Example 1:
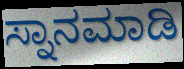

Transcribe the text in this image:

ಸ್ನಾನಮಾಡಿ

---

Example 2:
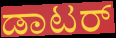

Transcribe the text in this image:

ಡಾಟರ್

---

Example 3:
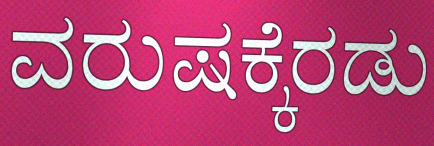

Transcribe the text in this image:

ವರುಷಕ್ಕೆರಡು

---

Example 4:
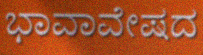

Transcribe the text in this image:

ಭಾವಾವೇಷದ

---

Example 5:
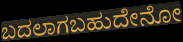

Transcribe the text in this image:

ಬದಲಾಗಬಹುದೇನೋ